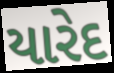
યારેદ